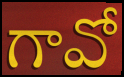
గావో